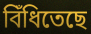
বিঁধিতেছে